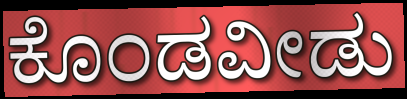
ಕೊಂಡವೀಡು